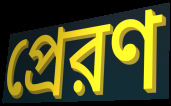
প্রেরণ